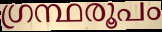
ഗ്രന്ഥരൂപം